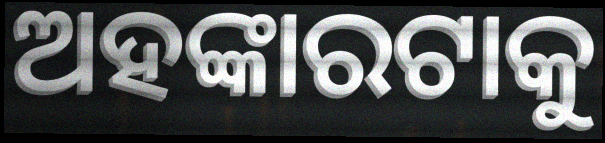
ଅହଙ୍କାରଟାକୁ